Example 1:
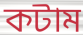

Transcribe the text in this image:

কটাম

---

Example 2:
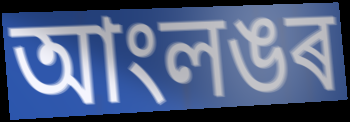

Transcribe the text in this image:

আংলঙৰ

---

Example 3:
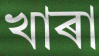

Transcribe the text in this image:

খাৰা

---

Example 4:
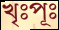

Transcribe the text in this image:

খৃঃপূঃ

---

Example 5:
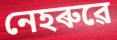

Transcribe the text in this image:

নেহৰুৱে